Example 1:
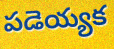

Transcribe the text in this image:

పడెయ్యక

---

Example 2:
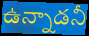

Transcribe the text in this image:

ఉన్నాడనీ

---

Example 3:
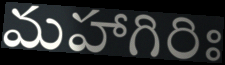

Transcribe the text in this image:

మహాగిరిః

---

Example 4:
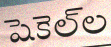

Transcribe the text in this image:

షెకెల్‌ల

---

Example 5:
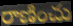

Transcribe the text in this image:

రాణించు